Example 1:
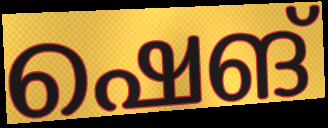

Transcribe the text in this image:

ഷെങ്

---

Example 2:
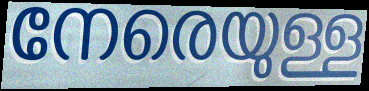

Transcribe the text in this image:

നേരെയുള്ള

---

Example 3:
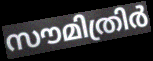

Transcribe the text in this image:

സൗമിത്രിർ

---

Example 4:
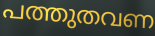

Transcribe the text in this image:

പത്തുതവണ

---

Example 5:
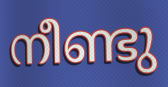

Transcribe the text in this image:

നീണ്ടു